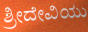
ಶ್ರೀದೇವಿಯು